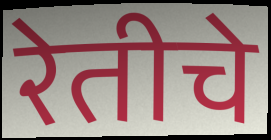
रेतीचे